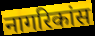
नागरिकांस